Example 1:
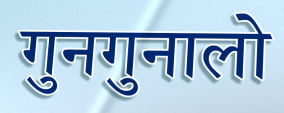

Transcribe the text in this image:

गुनगुनालो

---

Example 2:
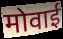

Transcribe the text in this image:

मोवाई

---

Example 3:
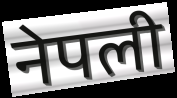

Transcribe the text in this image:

नेपली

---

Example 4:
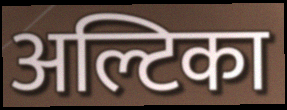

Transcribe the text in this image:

अल्टिका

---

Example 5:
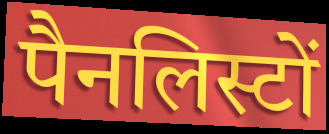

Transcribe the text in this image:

पैनलिस्टों